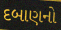
દબાણનો